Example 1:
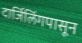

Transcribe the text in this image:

दार्जिलिंगपासून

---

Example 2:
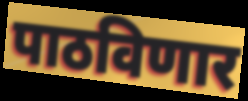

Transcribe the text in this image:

पाठविणार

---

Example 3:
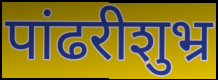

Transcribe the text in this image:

पांढरीशुभ्र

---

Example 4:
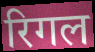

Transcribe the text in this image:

रिगल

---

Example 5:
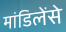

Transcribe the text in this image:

मांडिलेंसे